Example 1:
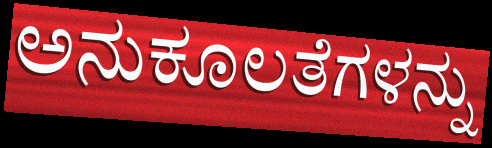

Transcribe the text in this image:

ಅನುಕೂಲತೆಗಳನ್ನು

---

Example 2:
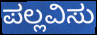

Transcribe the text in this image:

ಪಲ್ಲವಿಸು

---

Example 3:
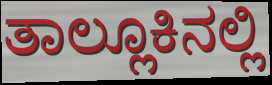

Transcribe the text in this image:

ತಾಲ್ಲೂಕಿನಲ್ಲಿ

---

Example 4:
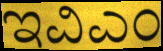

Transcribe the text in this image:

ಇವಿಎಂ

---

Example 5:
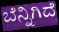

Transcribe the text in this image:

ಬೆನ್ನಿಗಿದೆ